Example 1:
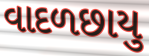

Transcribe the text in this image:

વાદળછાયુ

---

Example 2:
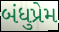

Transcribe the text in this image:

બંધુપ્રેમ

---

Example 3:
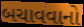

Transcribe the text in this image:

બચાવવાનો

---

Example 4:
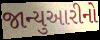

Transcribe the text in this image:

જાન્યુઆરીનો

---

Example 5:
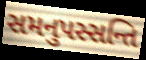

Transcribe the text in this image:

સમનુપસ્સન્તિ